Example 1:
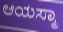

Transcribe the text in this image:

ಆಯಸ್ಮಾ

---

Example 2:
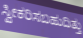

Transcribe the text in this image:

ಸ್ವೀಕರಿಸಬಹುದಿತ್ತು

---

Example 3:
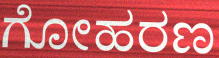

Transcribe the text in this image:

ಗೋಹರಣ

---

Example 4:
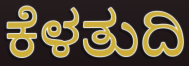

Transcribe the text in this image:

ಕೆಳತುದಿ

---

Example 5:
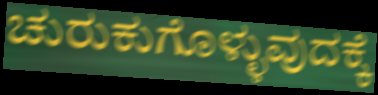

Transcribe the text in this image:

ಚುರುಕುಗೊಳ್ಳುವುದಕ್ಕೆ